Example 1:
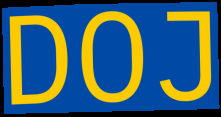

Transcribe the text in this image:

DOJ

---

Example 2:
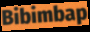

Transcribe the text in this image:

Bibimbap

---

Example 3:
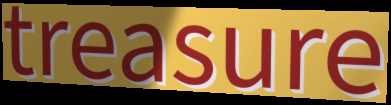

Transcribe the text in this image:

treasure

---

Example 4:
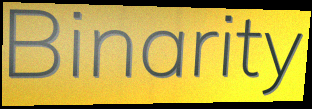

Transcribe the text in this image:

Binarity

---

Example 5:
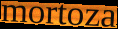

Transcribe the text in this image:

mortoza